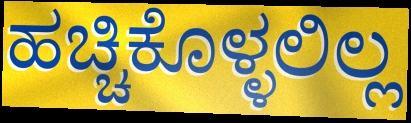
ಹಚ್ಚಿಕೊಳ್ಳಲಿಲ್ಲ